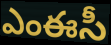
ఎంఈసీ